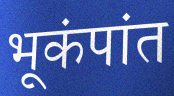
भूकंपांत